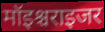
मॉइश्चराइजर